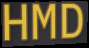
HMD